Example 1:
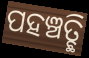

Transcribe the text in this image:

ପହଞ୍ଚତ୍ଛି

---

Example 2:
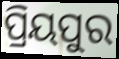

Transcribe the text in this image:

ପ୍ରିୟପୁର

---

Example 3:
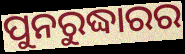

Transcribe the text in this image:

ପୁନରୁଦ୍ଧାରର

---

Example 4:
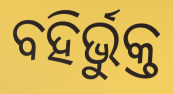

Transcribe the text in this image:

ବହିର୍ଭୁକ୍ତ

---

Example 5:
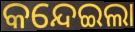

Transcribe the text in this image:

କନ୍ଦେଇଲା